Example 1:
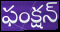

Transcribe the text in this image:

ఫంక్షన్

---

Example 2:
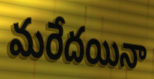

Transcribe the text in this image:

మరేదయినా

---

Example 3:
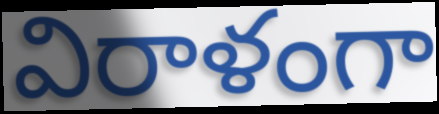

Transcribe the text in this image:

విరాళంగా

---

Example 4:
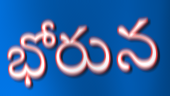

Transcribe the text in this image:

భోరున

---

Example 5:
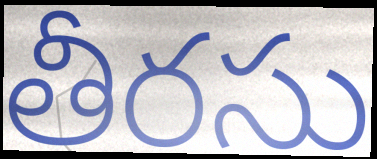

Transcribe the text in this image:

తీరసు